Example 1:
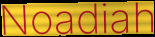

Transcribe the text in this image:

Noadiah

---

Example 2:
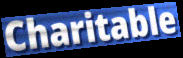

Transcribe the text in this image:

Charitable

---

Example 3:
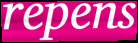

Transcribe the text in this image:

repens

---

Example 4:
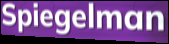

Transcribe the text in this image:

Spiegelman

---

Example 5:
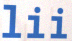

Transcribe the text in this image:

lii